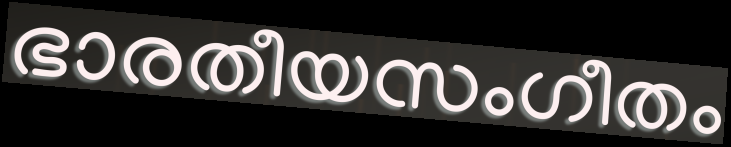
ഭാരതീയസംഗീതം